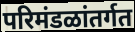
परिमंडळांतर्गत